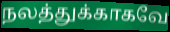
நலத்துக்காகவே